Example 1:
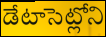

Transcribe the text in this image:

డేటాసెట్లోని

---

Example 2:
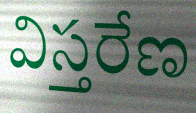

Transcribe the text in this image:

విస్తరేణ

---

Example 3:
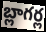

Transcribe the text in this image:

బ్లాగర్ల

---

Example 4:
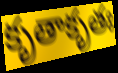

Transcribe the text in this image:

కృతాకృతః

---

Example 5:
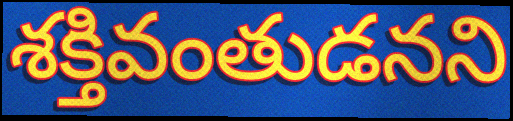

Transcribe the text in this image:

శక్తివంతుడనని